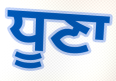
ਧੂਣਾ